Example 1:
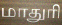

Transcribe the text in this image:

மாதுரி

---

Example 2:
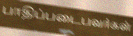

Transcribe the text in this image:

பாதிப்படைபவர்கள்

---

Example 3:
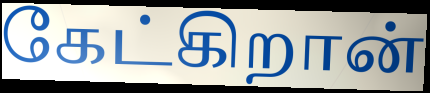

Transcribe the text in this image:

கேட்கிறான்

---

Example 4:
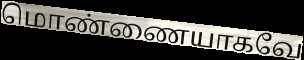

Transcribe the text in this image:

மொண்ணையாகவே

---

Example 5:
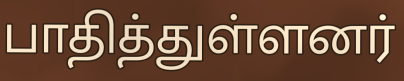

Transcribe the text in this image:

பாதித்துள்ளனர்